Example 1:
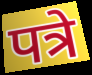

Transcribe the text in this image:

पत्रे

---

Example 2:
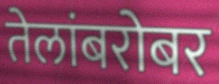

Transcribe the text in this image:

तेलांबरोबर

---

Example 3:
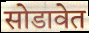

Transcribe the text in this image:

सोडावेत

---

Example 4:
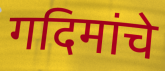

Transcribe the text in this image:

गदिमांचे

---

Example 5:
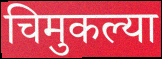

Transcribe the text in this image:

चिमुकल्या